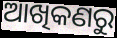
ଆଖିକଣରୁ